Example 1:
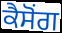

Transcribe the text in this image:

ਕੈਸੋਂਗ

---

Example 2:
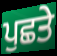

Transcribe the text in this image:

ਪੁਛਤੇ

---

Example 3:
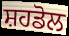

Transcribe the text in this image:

ਸ਼ਹਡੋਲ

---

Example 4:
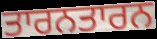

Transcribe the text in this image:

ਤਾਰਨਤਾਰਨ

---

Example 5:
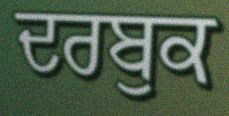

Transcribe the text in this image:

ਦਰਬੁਕ